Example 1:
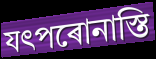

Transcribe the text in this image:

যৎপৰোনাস্তি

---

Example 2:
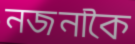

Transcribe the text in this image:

নজনাকৈ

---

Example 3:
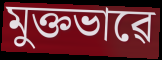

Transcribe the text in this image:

মুক্তভাৱে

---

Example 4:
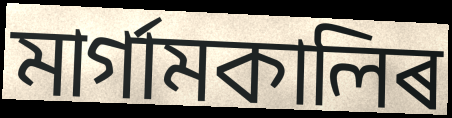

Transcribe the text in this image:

মাৰ্গামকালিৰ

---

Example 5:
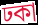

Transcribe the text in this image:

ঢকা